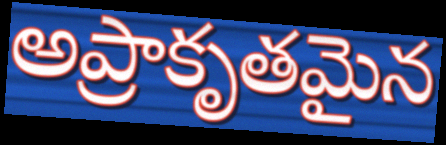
అప్రాకృతమైన